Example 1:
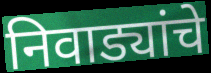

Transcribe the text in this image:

निवाड्यांचे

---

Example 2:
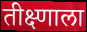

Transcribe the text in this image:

तीक्ष्णाला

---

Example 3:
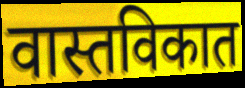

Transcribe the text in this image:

वास्तविकात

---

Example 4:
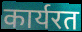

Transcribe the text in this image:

कार्यरत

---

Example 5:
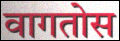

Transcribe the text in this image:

वागतोस